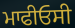
ਮਾਫੀਓਸੀ